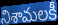
నిశామలకీ